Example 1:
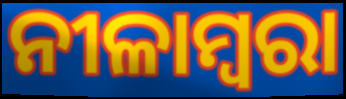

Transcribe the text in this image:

ନୀଳାମ୍ବରା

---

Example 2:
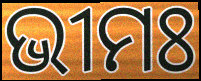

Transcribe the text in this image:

ଭୀମଃ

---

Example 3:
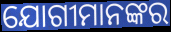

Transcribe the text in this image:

ଯୋଗୀମାନଙ୍କର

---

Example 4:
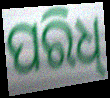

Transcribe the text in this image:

ପରିଧ୍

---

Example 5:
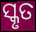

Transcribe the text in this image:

ସ୍କୃତ